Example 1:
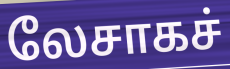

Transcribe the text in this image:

லேசாகச்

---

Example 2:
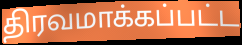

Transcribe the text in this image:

திரவமாக்கப்பட்ட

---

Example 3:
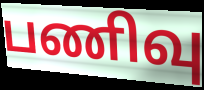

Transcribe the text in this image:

பணிவு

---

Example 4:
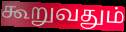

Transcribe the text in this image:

கூறுவதும்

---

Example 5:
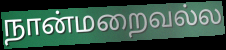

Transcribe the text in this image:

நான்மறைவல்ல